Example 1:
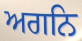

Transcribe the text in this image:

ਅਗਨਿ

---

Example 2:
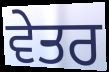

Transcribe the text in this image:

ਵੇਤਰ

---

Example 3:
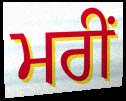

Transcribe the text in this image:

ਮਰੀਂ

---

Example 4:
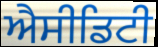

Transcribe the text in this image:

ਐਸੀਡਿਟੀ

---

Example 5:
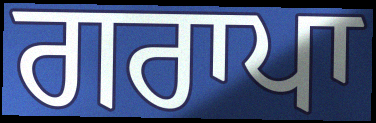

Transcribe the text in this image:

ਗਰਾਪਾ